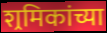
श्रमिकांच्या